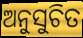
ଅନୁସୁଚିତ